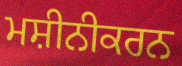
ਮਸ਼ੀਨੀਕਰਨ